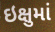
ઇક્ષુમાં